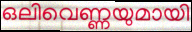
ഒലിവെണ്ണയുമായി